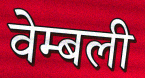
वेम्बली